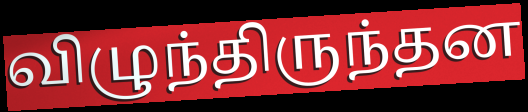
விழுந்திருந்தன